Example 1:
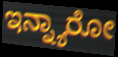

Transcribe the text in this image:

ಇನ್ನ್ಯಾರೋ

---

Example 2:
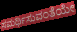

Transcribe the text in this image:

ಸಮರ್ಥಿಸುವಂತೆಯೇ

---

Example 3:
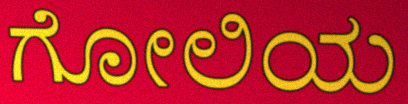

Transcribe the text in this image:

ಗೋಲಿಯ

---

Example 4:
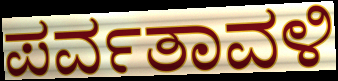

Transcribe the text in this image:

ಪರ್ವತಾವಳಿ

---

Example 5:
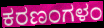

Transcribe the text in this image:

ಕರಣಂಗಳಂ